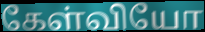
கேள்வியோ